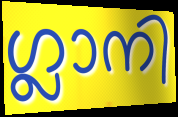
ഗ്ലാനി